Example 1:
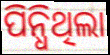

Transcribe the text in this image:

ପିନ୍ଧିଥିଲା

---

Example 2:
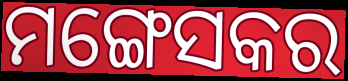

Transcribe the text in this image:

ମଙ୍ଗେସକର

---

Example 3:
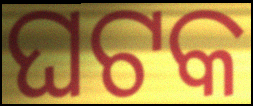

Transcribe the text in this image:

ଘଟକ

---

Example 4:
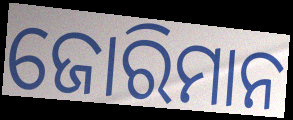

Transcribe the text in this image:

ଜୋରିମାନ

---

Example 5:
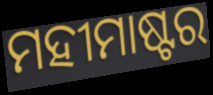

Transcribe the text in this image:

ମହୀମାଷ୍ଟର